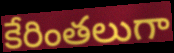
కేరింతలుగా